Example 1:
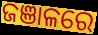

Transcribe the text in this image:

ଜଞାଳରେ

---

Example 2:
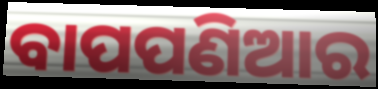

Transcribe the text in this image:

ବାପପଣିଆର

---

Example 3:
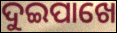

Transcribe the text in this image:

ଦୁଇପାଖେ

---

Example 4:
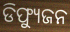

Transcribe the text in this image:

ଡିଫ୍ୟୁଜନ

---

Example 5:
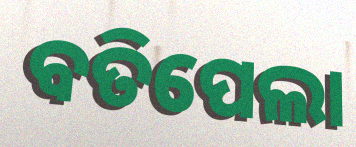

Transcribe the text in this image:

ବତିପେଲା